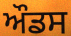
ਔਡਸ